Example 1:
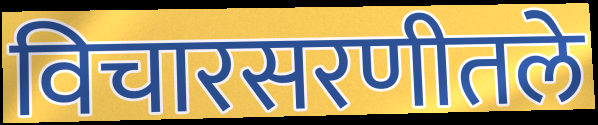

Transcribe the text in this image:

विचारसरणीतले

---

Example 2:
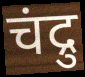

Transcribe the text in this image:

चंद्रु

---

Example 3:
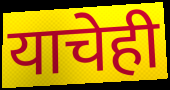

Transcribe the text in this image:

याचेही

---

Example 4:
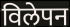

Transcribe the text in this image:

विलेपन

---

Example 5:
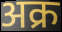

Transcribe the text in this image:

अक्र